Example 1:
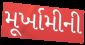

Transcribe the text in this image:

મૂર્ખામીની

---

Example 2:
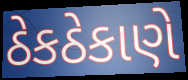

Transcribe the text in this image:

ઠેકઠેકાણે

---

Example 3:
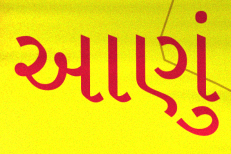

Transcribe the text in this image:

આણું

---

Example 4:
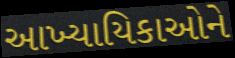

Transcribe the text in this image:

આખ્યાયિકાઓને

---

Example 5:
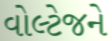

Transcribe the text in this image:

વોલ્ટેજને